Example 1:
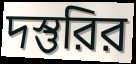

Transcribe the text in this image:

দস্তুরির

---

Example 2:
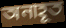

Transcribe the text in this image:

অনাহূত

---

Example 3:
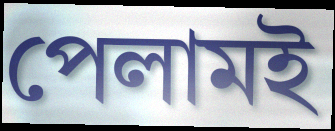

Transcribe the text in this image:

পেলামই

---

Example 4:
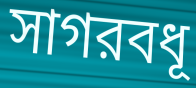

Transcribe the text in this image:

সাগরবধূ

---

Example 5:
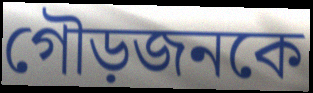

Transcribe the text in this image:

গৌড়জনকে